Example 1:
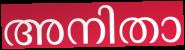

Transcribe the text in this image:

അനിതാ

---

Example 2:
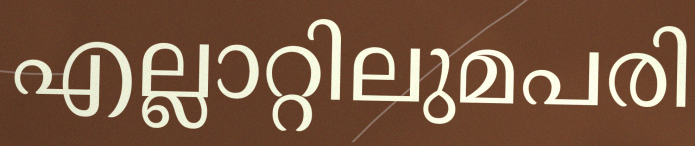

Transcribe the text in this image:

എല്ലാറ്റിലുമപരി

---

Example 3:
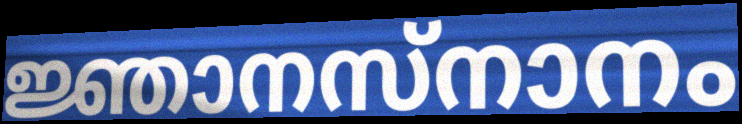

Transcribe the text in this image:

ജ്ഞാനസ്നാനം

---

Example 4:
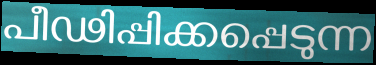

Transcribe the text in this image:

പീഢിപ്പിക്കപ്പെടുന്ന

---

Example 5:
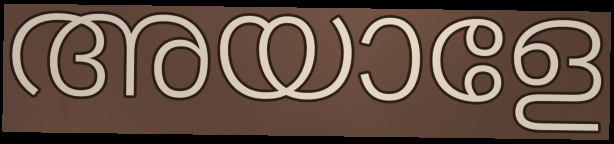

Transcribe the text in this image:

അയാളേ